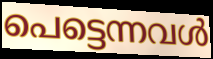
പെട്ടെന്നവൾ